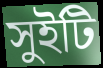
সুইটি